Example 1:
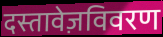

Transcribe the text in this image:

दस्तावेज़विवरण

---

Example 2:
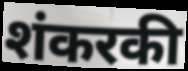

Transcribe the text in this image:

शंकरकी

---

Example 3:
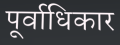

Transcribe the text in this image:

पूर्वाधिकार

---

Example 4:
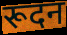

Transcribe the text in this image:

रूदन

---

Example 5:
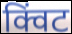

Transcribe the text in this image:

क्विंट